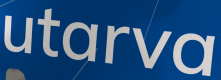
utarva